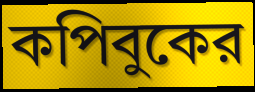
কপিবুকের